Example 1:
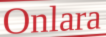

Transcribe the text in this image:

Onlara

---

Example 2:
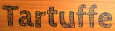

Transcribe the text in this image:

Tartuffe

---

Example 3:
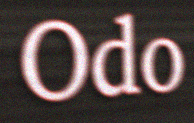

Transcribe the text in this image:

Odo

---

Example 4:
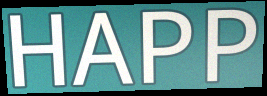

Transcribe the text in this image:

HAPP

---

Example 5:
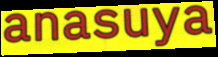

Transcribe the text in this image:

anasuya